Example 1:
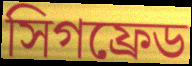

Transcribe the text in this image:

সিগফ্রেড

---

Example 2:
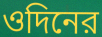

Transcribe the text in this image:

ওদিনের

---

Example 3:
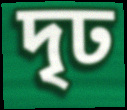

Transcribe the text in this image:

দৃঢ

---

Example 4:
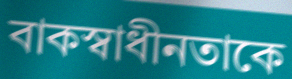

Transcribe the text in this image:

বাকস্বাধীনতাকে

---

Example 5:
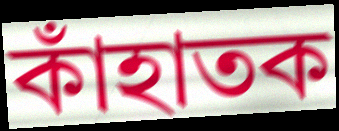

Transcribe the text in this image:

কাঁহাতক